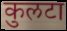
कुलटा